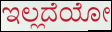
ಇಲ್ಲದೆಯೋ